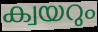
ക്വയറും